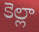
కెల్లా